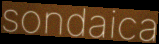
sondaica